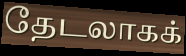
தேடலாகக்